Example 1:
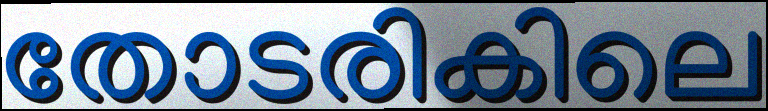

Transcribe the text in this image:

തോടരികിലെ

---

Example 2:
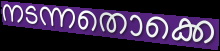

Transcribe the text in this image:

നടന്നതൊക്കെ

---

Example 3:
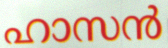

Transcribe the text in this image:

ഹാസൻ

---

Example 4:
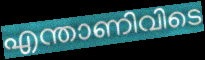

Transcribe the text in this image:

എന്താണിവിടെ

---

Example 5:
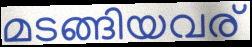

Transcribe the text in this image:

മടങ്ങിയവര്